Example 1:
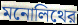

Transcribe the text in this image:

মনোলিথের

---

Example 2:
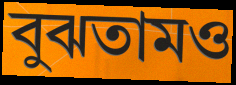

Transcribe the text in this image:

বুঝতামও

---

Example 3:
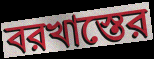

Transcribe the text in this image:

বরখাস্তের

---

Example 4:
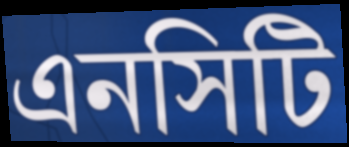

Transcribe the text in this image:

এনসিটি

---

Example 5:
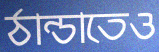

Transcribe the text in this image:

ঠান্ডাতেও